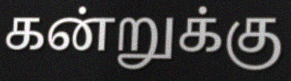
கன்றுக்கு